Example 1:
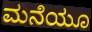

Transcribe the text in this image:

ಮನೆಯೂ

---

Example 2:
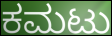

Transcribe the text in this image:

ಕಮಟು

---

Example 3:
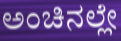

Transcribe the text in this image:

ಅಂಚಿನಲ್ಲೇ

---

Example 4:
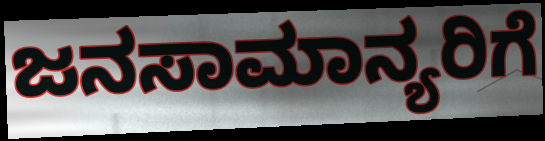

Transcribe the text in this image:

ಜನಸಾಮಾನ್ಯರಿಗೆ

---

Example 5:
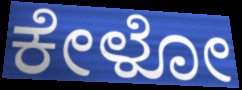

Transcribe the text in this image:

ಕೇಳೋ